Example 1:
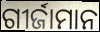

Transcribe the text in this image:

ଗୀର୍ଜାମାନ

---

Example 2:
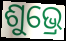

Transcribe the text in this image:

ଶୁଭ୍ରେ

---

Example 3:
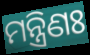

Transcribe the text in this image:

ମନ୍ତ୍ରିଣଃ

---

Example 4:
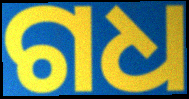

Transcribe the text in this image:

ଗଧ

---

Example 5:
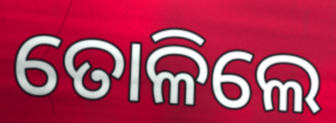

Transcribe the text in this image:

ତୋଳିଲେ